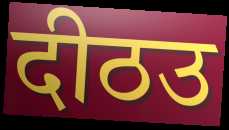
दीठउ